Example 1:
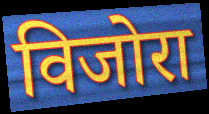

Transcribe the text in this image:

विजोरा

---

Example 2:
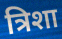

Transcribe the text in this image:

त्रिशा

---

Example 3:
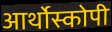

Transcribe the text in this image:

आर्थोस्कोपी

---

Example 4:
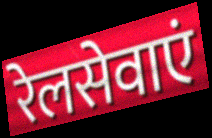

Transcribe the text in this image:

रेलसेवाएं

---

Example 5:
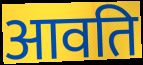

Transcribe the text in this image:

आवति